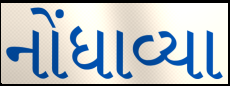
નોંધાવ્યા